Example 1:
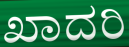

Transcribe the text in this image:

ಖಾದರಿ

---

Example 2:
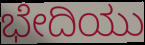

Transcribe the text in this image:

ಭೇದಿಯು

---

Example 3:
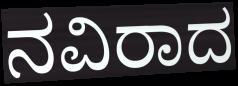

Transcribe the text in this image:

ನವಿರಾದ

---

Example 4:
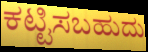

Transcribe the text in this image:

ಕಟ್ಟಿಸಬಹುದು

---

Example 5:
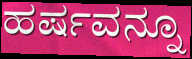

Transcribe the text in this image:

ಹರ್ಷವನ್ನೂ